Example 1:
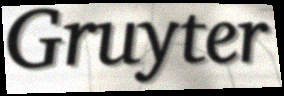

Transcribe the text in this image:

Gruyter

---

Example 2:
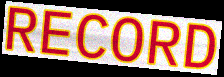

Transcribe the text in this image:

RECORD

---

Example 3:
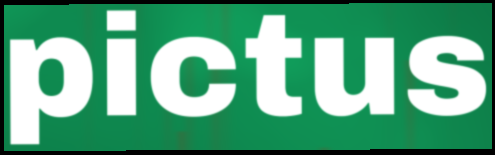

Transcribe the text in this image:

pictus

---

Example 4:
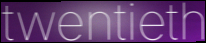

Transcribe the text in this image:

twentieth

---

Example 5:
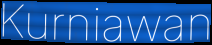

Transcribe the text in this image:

Kurniawan